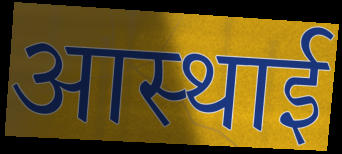
आस्थाई